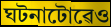
ঘটনাটোৱেও